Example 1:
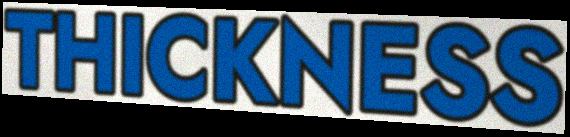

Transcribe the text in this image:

THICKNESS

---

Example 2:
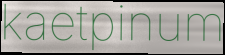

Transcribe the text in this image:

kaetpinum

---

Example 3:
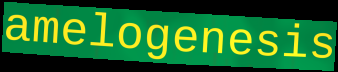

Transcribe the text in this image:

amelogenesis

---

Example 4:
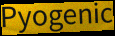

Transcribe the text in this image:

Pyogenic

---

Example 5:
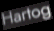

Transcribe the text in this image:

Hartog